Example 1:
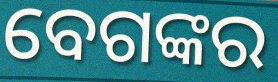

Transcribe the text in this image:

ବେଗଙ୍କର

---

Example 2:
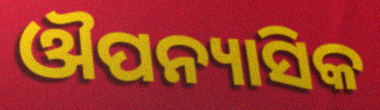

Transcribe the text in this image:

ଔପନ୍ୟାସିକ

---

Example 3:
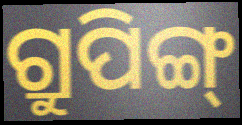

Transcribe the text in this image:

ଗ୍ରୁପିଙ୍ଗ୍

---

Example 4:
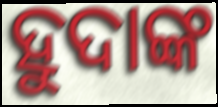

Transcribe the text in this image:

ହୁଦାଙ୍କ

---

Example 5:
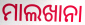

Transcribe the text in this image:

ମାଲଖାନା